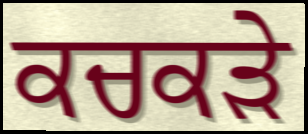
ਕਚਕੜੇ